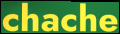
chache